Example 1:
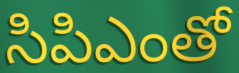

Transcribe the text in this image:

సిపిఎంతో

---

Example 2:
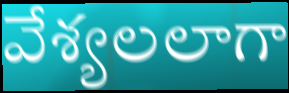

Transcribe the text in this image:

వేశ్యలలాగా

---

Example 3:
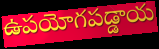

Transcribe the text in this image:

ఉపయోగపడ్డాయ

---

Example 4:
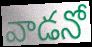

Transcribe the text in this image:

వాడనో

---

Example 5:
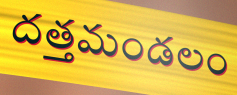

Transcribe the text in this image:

దత్తమండలం